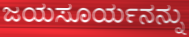
ಜಯಸೂರ್ಯನನ್ನು